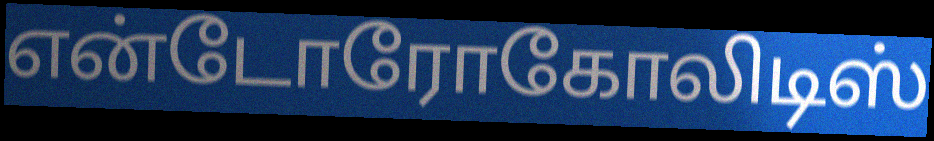
என்டோரோகோலிடிஸ்